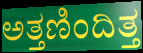
ಅತ್ತಣಿಂದಿತ್ತ